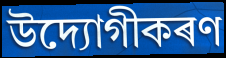
উদ্যোগীকৰণ